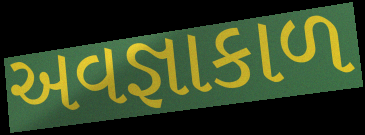
અવજ્ઞાકાળ